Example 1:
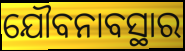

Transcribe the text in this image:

ଯୌବନାବସ୍ଥାର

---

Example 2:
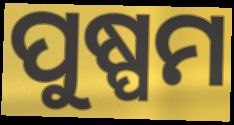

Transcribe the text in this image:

ପୁଷ୍ପମ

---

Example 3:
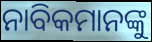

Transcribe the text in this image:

ନାବିକମାନଙ୍କୁ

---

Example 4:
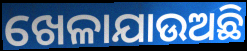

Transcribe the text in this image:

ଖେଳାଯାଉଅଛି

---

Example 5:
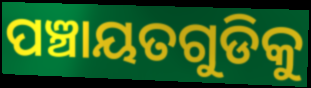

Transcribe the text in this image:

ପଞ୍ଚାୟତଗୁଡିକୁ